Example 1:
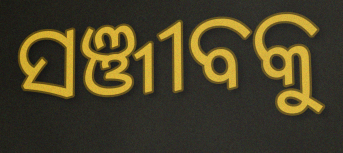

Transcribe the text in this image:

ସଞ୍ଜୀବକୁ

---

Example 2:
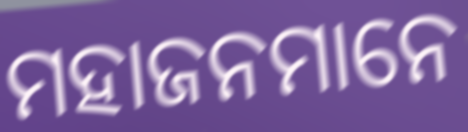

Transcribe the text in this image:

ମହାଜନମାନେ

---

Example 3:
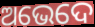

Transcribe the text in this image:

ଅଭେଦେ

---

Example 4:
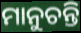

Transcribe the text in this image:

ମାନୁଚନ୍ତି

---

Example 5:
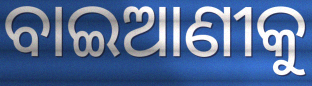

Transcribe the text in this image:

ବାଇଆଣୀକୁ